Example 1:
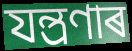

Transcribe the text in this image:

যন্ত্ৰণাৰ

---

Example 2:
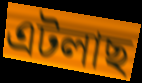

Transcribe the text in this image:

এটলাছ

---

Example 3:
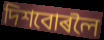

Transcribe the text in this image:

দিশবোৰলৈ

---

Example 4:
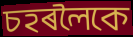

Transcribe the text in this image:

চহৰলৈকে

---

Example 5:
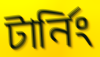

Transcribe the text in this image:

টাৰ্নিং